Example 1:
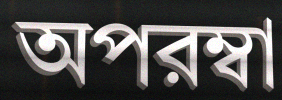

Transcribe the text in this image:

অপরম্বা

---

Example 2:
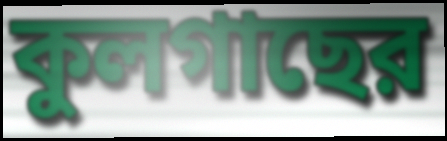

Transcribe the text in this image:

কুলগাছের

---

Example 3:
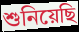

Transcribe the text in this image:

শুনিয়েছি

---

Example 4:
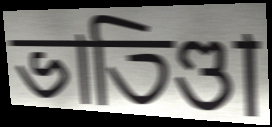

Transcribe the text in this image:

ভাতিণ্ডা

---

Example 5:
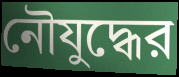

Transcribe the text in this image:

নৌযুদ্ধের